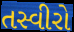
તસ્વીરો